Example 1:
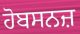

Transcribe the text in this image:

ਹੋਬਸਨਜ਼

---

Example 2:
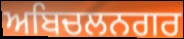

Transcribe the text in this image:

ਅਬਿਚਲਨਗਰ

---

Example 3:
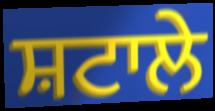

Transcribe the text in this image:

ਸ਼ਟਾਲੇ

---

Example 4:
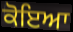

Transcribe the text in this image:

ਕੋਇਆ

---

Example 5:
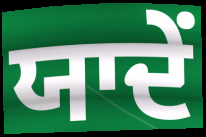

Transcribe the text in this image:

ਯਾਦੇਂ